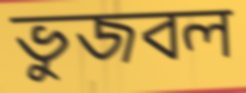
ভুজবল